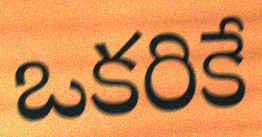
ఒకరికే